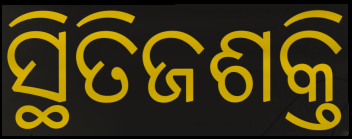
ସ୍ଥିତିଜଶକ୍ତି